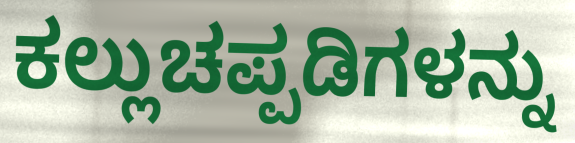
ಕಲ್ಲುಚಪ್ಪಡಿಗಳನ್ನು